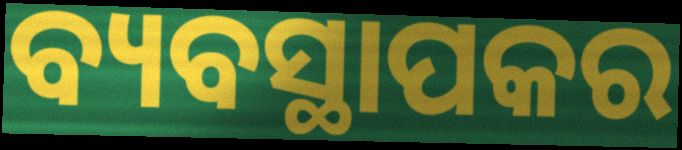
ବ୍ୟବସ୍ଥାପକର